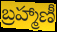
బ్రహ్మాణీ